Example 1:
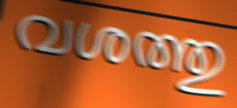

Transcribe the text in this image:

വശത്തു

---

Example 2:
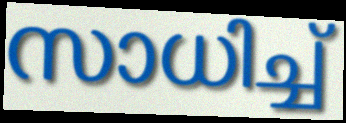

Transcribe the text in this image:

സാധിച്ച്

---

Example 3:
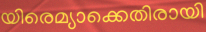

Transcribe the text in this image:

യിരെമ്യാക്കെതിരായി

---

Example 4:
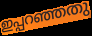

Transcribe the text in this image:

ഇപ്പറഞ്ഞതു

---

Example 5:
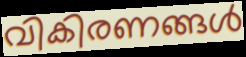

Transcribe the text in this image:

വികിരണങ്ങൾ